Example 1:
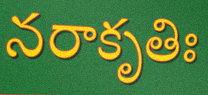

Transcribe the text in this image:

నరాకృతిః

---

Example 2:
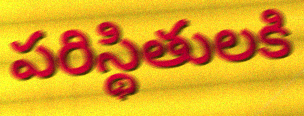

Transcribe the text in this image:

పరిస్థితులకి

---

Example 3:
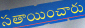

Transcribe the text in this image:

సతాయించారు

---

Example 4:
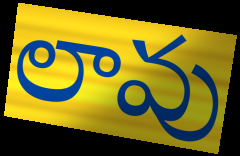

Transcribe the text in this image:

లావు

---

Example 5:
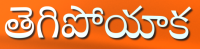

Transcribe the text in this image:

తెగిపోయాక